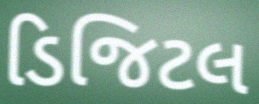
ડિજિટલ